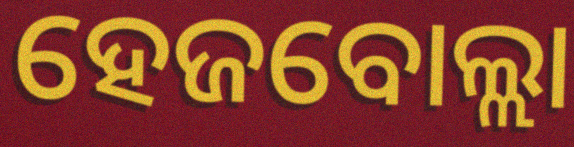
ହେଜବୋଲ୍ଲା